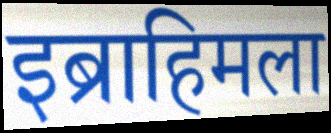
इब्राहिमला